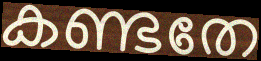
കണ്ടതേ